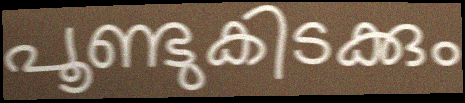
പൂണ്ടുകിടക്കും